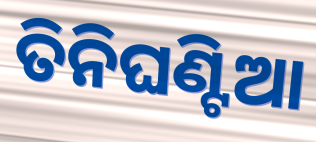
ତିନିଘଣ୍ଟିଆ